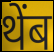
थेंब